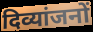
दिव्यांजनों